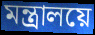
মন্ত্ৰালয়ে